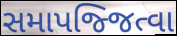
સમાપજ્જિત્વા